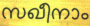
സഖീനാം